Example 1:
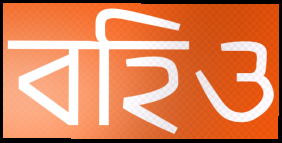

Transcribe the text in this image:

বহিও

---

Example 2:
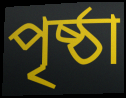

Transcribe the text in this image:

পৃষ্ঠা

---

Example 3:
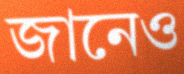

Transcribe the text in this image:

জানেও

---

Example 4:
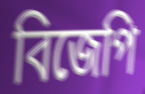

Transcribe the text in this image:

বিজেপি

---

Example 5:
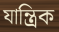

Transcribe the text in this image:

যান্ত্ৰিক